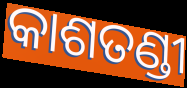
କାଶତଣ୍ଡୀ